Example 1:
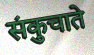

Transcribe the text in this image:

संकुचाते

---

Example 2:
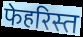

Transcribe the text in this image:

फेहरिस्त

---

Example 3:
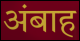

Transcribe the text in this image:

अंबाह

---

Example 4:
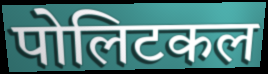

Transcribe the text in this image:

पोलिटकल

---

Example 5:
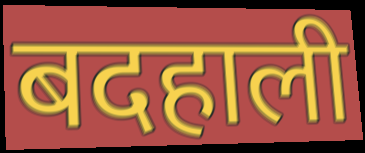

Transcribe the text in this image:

बदहाली